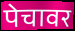
पेचावर